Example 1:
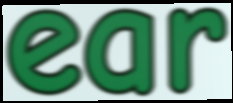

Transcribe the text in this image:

ear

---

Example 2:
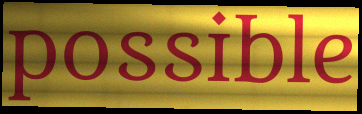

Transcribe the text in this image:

possible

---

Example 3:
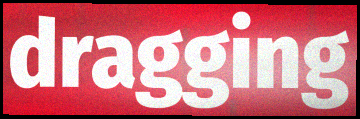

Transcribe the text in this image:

dragging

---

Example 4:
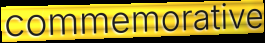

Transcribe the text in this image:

commemorative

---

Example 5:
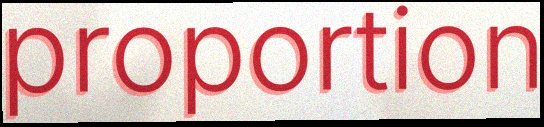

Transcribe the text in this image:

proportion